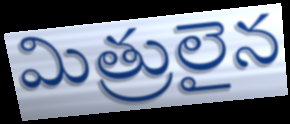
మిత్రులైన